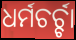
ଧର୍ମଚର୍ଚ୍ଚା